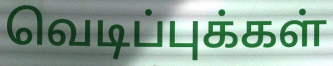
வெடிப்புக்கள்